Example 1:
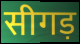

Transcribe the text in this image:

सीगड़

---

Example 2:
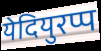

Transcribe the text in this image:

येदियुरप्प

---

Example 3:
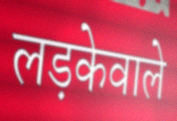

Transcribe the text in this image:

लड़केवाले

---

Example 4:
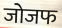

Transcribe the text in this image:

जोजफ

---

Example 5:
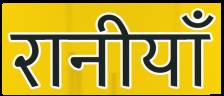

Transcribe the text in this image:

रानीयाँ